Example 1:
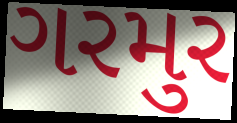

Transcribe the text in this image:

ગરમુર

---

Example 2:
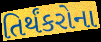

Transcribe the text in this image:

તિર્થંકરોના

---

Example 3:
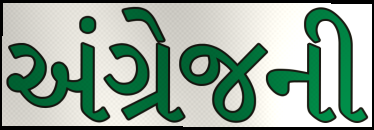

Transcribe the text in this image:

અંગ્રેજની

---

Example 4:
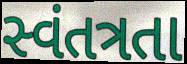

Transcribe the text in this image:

સ્વંતત્રતા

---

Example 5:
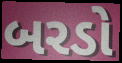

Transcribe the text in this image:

બરડો